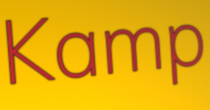
Kamp